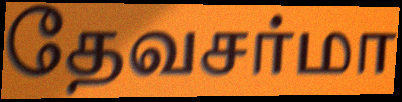
தேவசர்மா